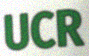
UCR